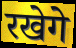
रखेगे